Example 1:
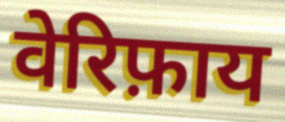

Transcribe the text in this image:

वेरिफ़ाय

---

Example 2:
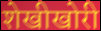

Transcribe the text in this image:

शेखीखोरी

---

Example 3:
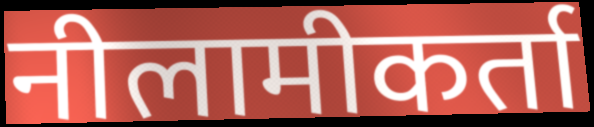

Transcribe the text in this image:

नीलामीकर्ता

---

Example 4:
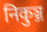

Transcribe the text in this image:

निकुञ्ज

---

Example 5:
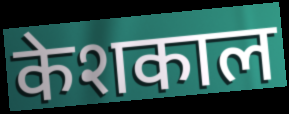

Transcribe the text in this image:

केशकाल